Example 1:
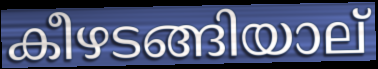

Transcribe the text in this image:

കീഴടങ്ങിയാല്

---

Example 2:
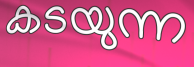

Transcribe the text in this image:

കടയുന്ന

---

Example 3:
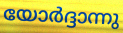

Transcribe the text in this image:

യോർദ്ദാന്നു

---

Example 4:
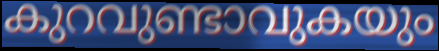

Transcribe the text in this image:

കുറവുണ്ടാവുകയും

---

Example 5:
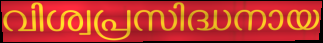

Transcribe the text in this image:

വിശ്വപ്രസിദ്ധനായ